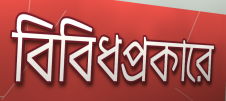
বিবিধপ্রকারে